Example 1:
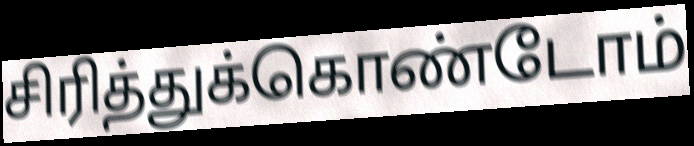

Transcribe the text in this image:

சிரித்துக்கொண்டோம்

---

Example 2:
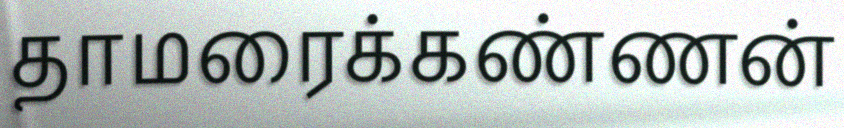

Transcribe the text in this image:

தாமரைக்கண்ணன்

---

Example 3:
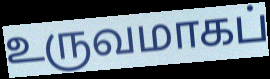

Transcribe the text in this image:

உருவமாகப்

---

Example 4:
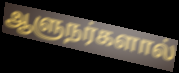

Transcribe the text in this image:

ஆளுநர்களால்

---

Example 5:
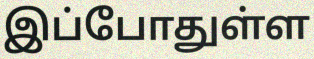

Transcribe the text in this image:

இப்போதுள்ள